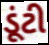
ડૂંટી